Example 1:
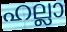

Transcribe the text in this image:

ഹല്ലാ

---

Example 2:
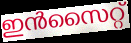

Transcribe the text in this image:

ഇൻസൈറ്റ്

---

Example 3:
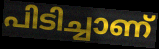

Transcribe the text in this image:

പിടിച്ചാണ്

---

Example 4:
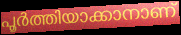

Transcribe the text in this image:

പൂർത്തിയാക്കാനാണ്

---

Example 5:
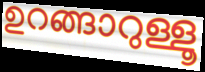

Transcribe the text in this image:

ഉറങ്ങാറുള്ളൂ